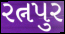
રત્નપુર